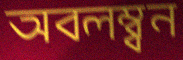
অবলম্ব্বন